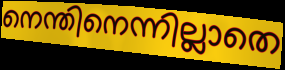
നെന്തിനെന്നില്ലാതെ